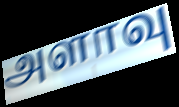
அளாவு